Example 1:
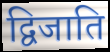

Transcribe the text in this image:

द्विजाति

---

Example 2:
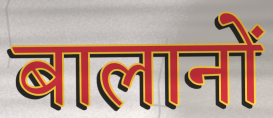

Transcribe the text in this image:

बालानों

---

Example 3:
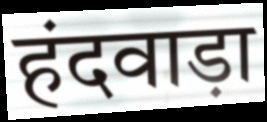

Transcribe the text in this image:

हंदवाड़ा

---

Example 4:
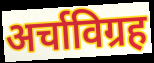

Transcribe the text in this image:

अर्चाविग्रह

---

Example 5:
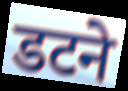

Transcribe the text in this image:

डटने